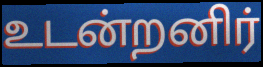
உடன்றனிர்